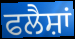
ਫਲੈਸ਼ਾਂ